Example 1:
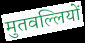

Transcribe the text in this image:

मुतवल्लियों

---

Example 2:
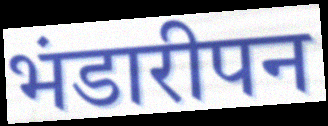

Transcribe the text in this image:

भंडारीपन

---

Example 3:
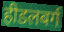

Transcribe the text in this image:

हीडलबर्ग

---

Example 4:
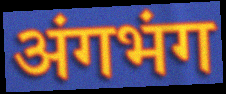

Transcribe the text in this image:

अंगभंग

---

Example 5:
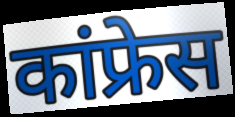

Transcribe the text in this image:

कांफ्रेस